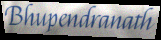
Bhupendranath